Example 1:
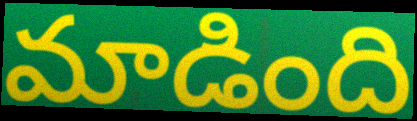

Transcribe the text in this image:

మాడింది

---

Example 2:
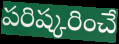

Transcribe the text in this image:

పరిష్కరించే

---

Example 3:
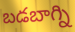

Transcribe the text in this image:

బడబాగ్ని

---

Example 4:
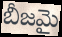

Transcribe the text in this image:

బీజమై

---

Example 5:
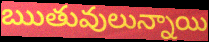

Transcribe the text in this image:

ఋతువులున్నాయి